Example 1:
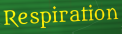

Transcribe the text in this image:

Respiration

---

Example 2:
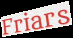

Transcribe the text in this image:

Friars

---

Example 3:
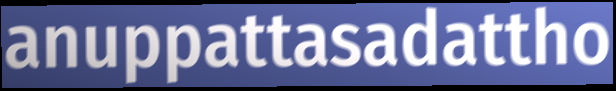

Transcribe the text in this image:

anuppattasadattho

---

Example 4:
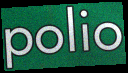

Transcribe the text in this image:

polio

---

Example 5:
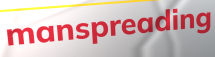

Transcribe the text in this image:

manspreading